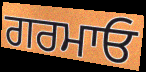
ਗਰਮਾਓ